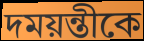
দময়ন্তীকে